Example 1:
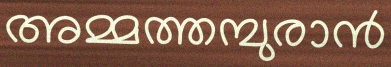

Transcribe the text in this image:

അമ്മത്തമ്പുരാൻ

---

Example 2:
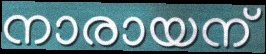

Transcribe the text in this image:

നാരായന്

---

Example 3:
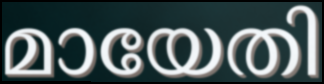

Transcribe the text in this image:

മായേതി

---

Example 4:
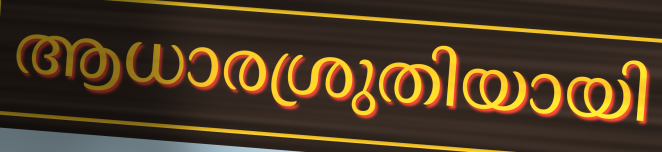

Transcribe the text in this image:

ആധാരശ്രുതിയായി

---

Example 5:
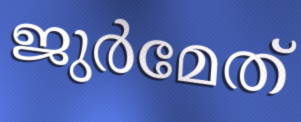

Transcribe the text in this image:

ജുർമേത്